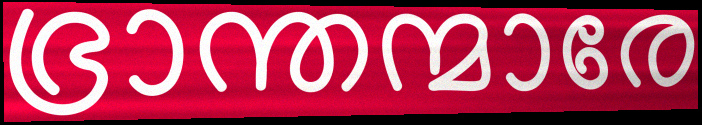
ഭ്രാന്തന്മാരേ